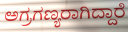
ಅಗ್ರಗಣ್ಯರಾಗಿದ್ದಾರೆ